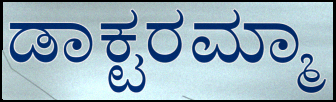
ಡಾಕ್ಟರಮ್ಮಾ